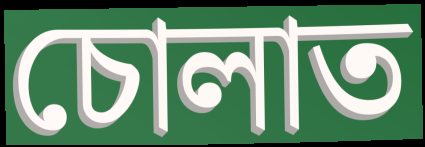
চোলাত